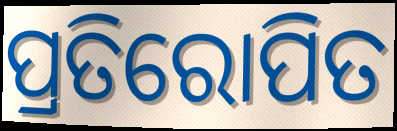
ପ୍ରତିରୋପିତ